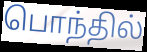
பொந்தில்